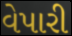
વેપારી